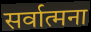
सर्वात्मना